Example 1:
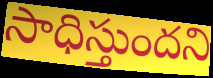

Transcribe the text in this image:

సాధిస్తుందని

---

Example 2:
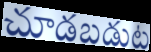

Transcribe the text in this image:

చూడబడుట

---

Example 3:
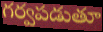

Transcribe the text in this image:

గర్వపడుతూ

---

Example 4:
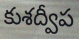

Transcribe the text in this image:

కుశద్వీప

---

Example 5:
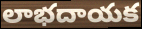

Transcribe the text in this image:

లాభదాయక